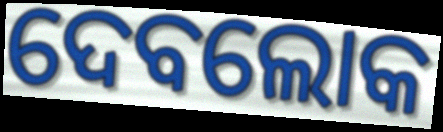
ଦେବଲୋକ